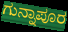
ಗುನ್ನಾಪೂರ